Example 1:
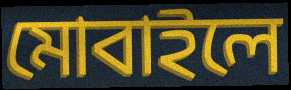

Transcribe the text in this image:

মোবাইলে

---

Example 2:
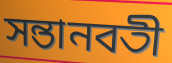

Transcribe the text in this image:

সন্তানবতী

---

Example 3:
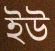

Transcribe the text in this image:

ইউ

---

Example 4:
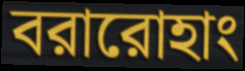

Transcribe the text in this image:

বরারোহাং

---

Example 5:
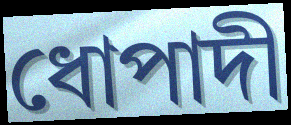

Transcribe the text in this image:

ধোপাদী